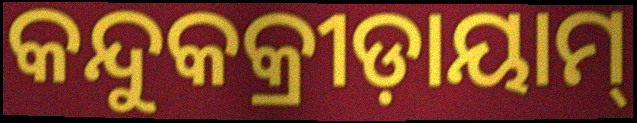
କନ୍ଦୁକକ୍ରୀଡ଼ାୟାମ୍